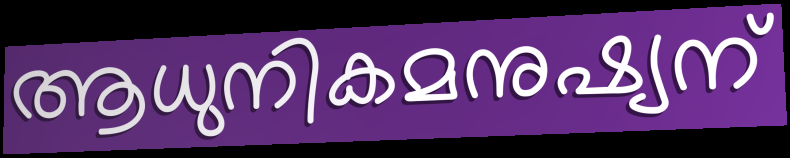
ആധുനികമനുഷ്യന്